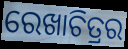
ରେଖାଚିତ୍ରର